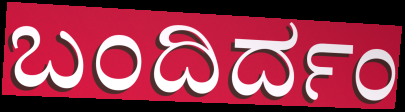
ಬಂದಿರ್ದಂ